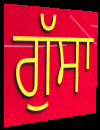
ਗੁੱਸਾ